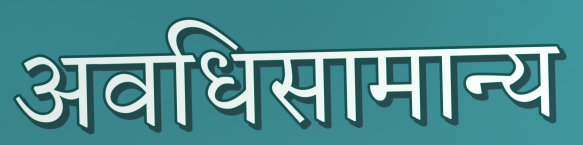
अवधिसामान्य